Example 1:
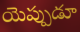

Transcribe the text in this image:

యెప్పుడూ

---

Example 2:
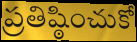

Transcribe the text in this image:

ప్రతిష్ఠించుకో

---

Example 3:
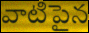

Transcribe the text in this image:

వాటిపైన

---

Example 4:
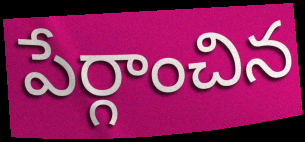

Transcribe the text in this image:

పేర్గాంచిన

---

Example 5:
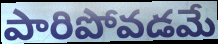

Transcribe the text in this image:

పారిపోవడమే